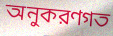
অনুকরণগত